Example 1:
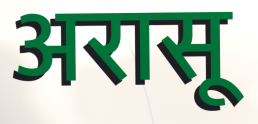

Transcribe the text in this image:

अरासू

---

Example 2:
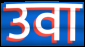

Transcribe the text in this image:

उवा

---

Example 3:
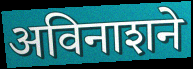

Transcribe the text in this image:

अविनाशने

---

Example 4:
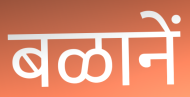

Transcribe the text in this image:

बळानें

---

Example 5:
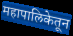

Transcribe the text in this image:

महापालिकेतून